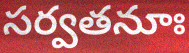
సర్వతనూః